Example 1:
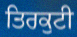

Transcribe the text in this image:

ਤਿਰਕੁਟੀ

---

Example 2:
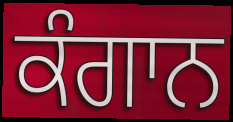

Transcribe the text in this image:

ਕੰਗਾਨ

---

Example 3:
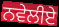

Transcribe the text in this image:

ਨਵੇਲੀਏ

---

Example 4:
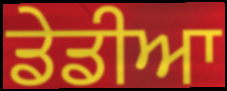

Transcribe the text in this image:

ਡੇਡੀਆ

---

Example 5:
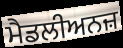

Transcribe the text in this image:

ਮੈਡਲੀਅਨਜ਼